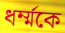
ধর্ম্মকে